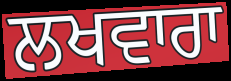
ਲਖਵਾਰਾ